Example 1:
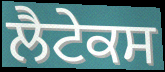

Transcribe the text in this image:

ਲੈਟੇਕਸ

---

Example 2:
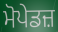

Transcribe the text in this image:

ਮੋਪੇਡਜ਼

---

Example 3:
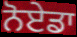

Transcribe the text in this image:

ਨੋਏਡਾ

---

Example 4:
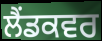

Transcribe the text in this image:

ਲੈਂਡਕਵਰ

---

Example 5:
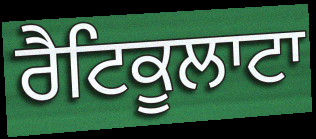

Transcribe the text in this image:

ਰੈਟਿਕੂਲਾਟਾ